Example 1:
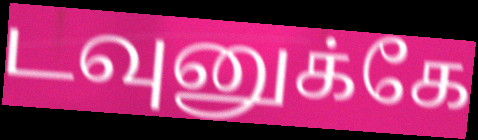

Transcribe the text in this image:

டவுனுக்கே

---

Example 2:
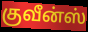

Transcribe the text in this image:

குவீன்ஸ்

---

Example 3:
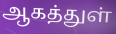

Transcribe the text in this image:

ஆகத்துள்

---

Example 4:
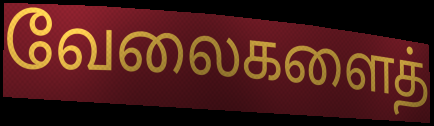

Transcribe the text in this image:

வேலைகளைத்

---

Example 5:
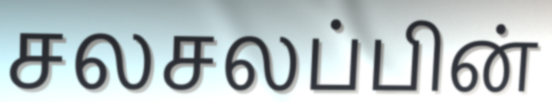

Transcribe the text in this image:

சலசலப்பின்